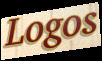
Logos